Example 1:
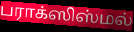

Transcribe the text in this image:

பராக்ஸிஸ்மல்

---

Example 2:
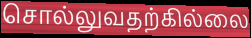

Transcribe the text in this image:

சொல்லுவதற்கில்லை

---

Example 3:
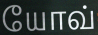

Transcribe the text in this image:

யோவ்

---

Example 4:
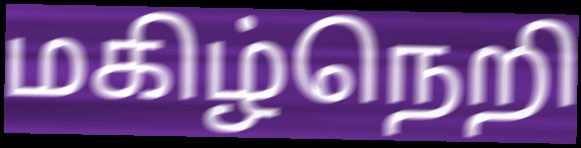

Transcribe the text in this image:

மகிழ்நெறி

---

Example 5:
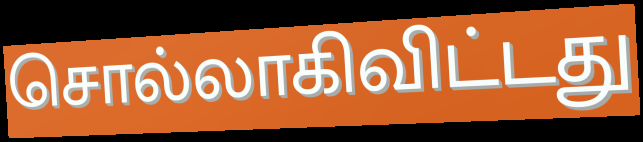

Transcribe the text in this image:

சொல்லாகிவிட்டது